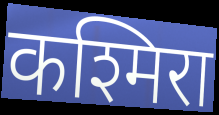
कश्मिरा